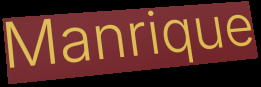
Manrique